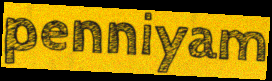
penniyam